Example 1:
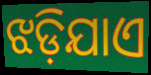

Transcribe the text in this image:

ଝଡ଼ିଯାଏ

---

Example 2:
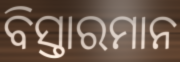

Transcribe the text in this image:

ବିସ୍ତାରମାନ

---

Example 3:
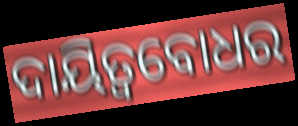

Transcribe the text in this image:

ଦାୟିତ୍ବବୋଧର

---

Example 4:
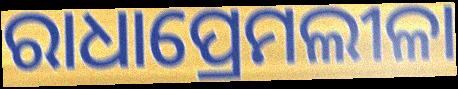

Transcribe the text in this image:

ରାଧାପ୍ରେମଲୀଳା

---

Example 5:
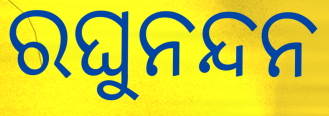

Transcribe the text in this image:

ରଘୁନନ୍ଦନ